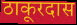
ठाकूरदास